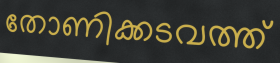
തോണിക്കടവത്ത്